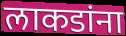
लाकडांना